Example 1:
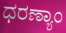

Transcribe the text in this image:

ಧರಣ್ಯಾಂ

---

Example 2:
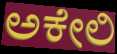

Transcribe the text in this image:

ಅಕೇಲಿ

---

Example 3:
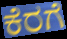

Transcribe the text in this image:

ಕೆರಗೆ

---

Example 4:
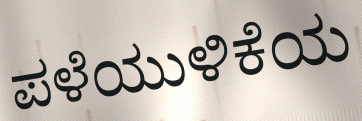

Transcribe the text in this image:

ಪಳೆಯುಳಿಕೆಯ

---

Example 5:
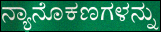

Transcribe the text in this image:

ನ್ಯಾನೊಕಣಗಳನ್ನು